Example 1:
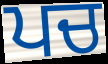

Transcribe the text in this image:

ਪਚ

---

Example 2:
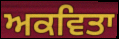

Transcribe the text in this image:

ਅਕਵਿਤਾ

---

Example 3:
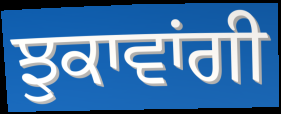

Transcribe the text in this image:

ਝੁਕਾਵਾਂਗੀ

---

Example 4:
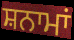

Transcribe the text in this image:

ਸ਼ਨਾਮਾਂ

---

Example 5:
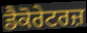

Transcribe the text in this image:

ਡੈਕੋਰੇਟਰਜ਼